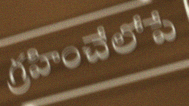
గ్రహించేలోపే